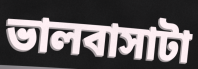
ভালবাসাটা